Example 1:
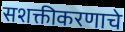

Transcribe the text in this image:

सशक्तीकरणाचे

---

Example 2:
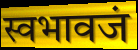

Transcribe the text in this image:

स्वभावजं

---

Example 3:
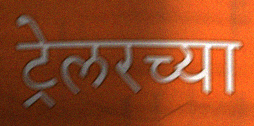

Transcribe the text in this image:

ट्रेलरच्या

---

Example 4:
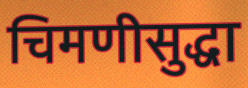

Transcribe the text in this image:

चिमणीसुद्धा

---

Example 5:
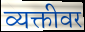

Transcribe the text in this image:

व्यक्तीवर